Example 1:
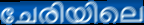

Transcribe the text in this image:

ചേരിയിലെ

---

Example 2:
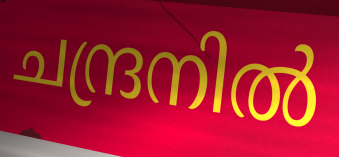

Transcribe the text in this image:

ചന്ദ്രനിൽ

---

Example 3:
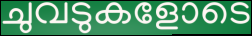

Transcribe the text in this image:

ചുവടുകളോടെ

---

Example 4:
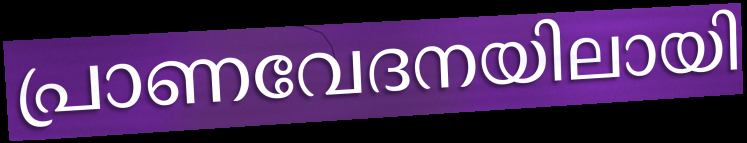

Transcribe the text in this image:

പ്രാണവേദനയിലായി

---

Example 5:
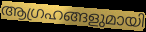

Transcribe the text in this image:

ആഗ്രഹങ്ങളുമായി